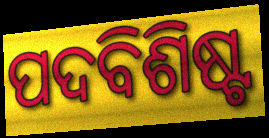
ପଦବିଶିଷ୍ଟ